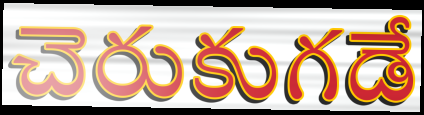
చెరుకుగడే